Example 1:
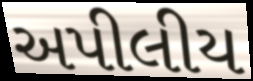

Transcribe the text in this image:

અપીલીય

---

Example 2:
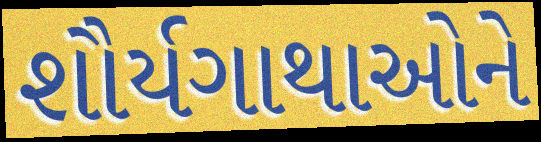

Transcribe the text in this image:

શૌર્યગાથાઓને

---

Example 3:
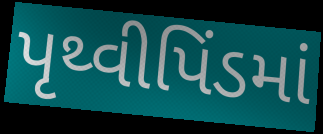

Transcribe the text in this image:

પૃથ્વીપિંડમાં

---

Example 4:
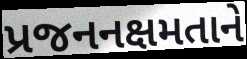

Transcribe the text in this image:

પ્રજનનક્ષમતાને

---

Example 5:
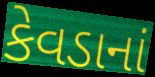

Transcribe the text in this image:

કેવડાનાં